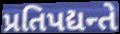
પ્રતિપદ્યન્તે